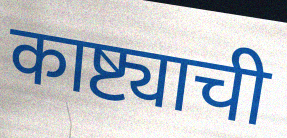
काष्ट्याची